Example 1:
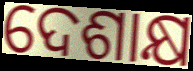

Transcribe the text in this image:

ଦେଶାକ୍ଷ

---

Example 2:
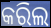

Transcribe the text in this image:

କରିଲ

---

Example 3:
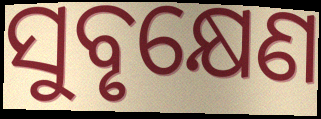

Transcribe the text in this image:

ସୁବୃକ୍ଷେଣ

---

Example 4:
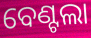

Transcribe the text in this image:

ବେଣ୍ଟଲା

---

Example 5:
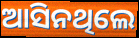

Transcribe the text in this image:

ଆସିନଥିଲେ